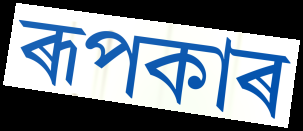
ৰূপকাৰ